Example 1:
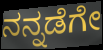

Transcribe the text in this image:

ನನ್ನಡೆಗೇ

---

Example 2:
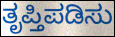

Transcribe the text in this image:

ತೃಪ್ತಿಪಡಿಸು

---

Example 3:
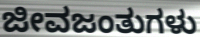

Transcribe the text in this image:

ಜೀವಜಂತುಗಳು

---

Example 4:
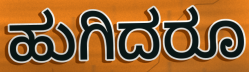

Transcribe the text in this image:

ಹುಗಿದರೂ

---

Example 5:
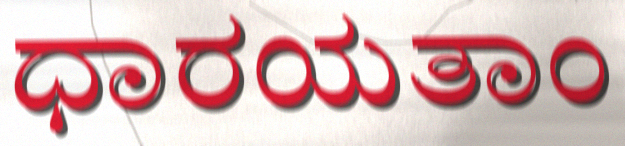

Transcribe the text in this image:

ಧಾರಯತಾಂ